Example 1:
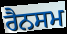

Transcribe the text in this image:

ਰੈਨਸਮ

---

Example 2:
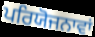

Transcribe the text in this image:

ਪਰਿਯੋਜਨਾਵਾਂ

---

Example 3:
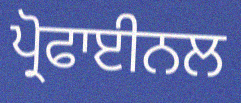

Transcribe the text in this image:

ਪ੍ਰੋਫਾਈਨਲ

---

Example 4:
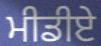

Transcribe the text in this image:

ਮੀਡੀਏ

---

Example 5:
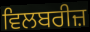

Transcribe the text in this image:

ਵਿਲਬਰੀਜ਼